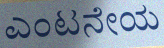
ಎಂಟನೇಯ